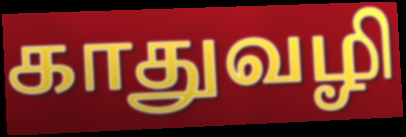
காதுவழி